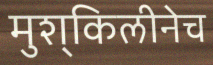
मुश्किलीनेच